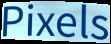
Pixels